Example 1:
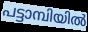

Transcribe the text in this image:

പട്ടാമ്പിയിൽ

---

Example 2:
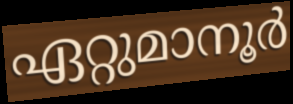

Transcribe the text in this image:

ഏറ്റുമാനൂർ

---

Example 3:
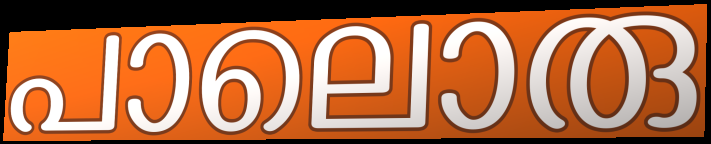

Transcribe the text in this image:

പാലൊരു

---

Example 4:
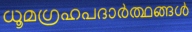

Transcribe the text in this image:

ധൂമഗ്രഹപദാർത്ഥങ്ങൾ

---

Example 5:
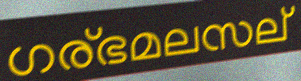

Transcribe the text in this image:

ഗര്ഭമലസല്